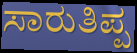
ಸಾರುತಿಪ್ಪ